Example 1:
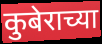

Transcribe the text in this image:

कुबेराच्या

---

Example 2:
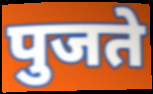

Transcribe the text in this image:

पुजते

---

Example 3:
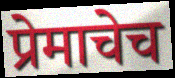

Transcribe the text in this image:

प्रेमाचेच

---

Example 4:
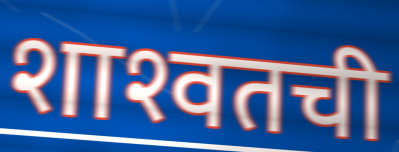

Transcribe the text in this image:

शाश्वतची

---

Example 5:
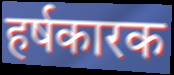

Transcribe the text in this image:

हर्षकारक